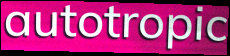
autotropic